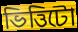
ভিত্তিটো